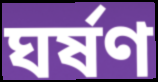
ঘৰ্ষণ